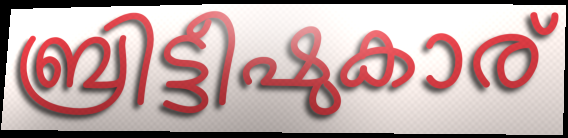
ബ്രിട്ടീഷുകാര്